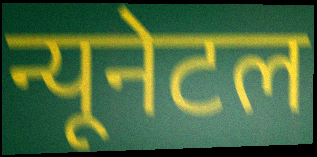
न्यूनेटल